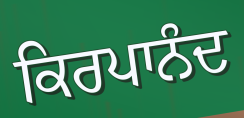
ਕਿਰਪਾਨੰਦ